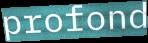
profond